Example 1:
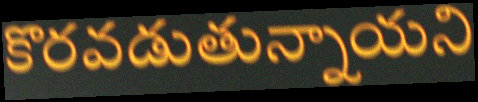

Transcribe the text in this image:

కొరవడుతున్నాయని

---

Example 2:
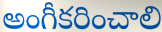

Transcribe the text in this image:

అంగీకరించాలి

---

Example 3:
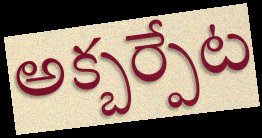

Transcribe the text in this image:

అక్బర్పేట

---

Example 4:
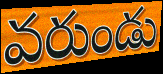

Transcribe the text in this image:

వరుండు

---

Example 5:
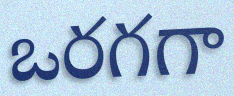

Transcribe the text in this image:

ఒరగగా